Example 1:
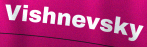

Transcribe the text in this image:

Vishnevsky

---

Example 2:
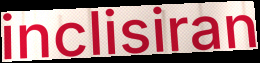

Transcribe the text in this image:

inclisiran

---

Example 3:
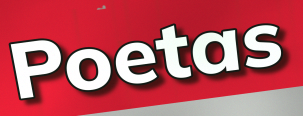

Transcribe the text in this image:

Poetas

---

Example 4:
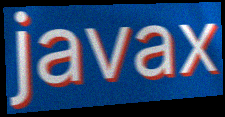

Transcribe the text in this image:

javax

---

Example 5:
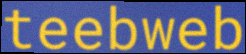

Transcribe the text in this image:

teebweb